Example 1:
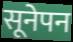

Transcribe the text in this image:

सूनेपन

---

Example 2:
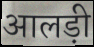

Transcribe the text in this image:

आलड़ी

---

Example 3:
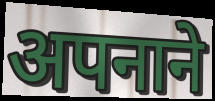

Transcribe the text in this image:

अपनाने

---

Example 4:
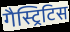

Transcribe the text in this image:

गैस्ट्रिटिस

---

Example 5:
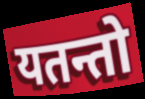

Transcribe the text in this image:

यतन्तो